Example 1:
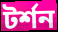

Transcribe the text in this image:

টর্শন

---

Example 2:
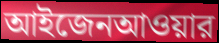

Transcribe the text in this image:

আইজেনআওয়ার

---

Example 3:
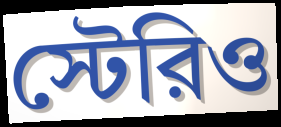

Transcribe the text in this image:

স্টেরিও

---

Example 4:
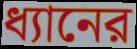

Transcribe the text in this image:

ধ্যানের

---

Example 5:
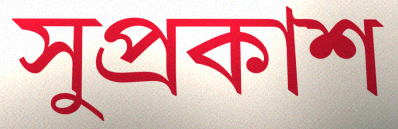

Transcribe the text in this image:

সুপ্রকাশ